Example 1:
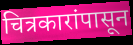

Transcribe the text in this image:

चित्रकारांपासून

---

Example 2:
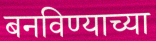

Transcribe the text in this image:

बनविण्याच्या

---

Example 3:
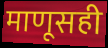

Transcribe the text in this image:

माणूसही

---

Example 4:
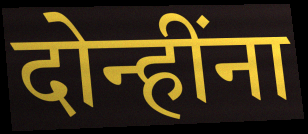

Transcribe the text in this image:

दोन्हींना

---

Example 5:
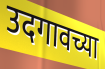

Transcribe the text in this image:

उदगावच्या